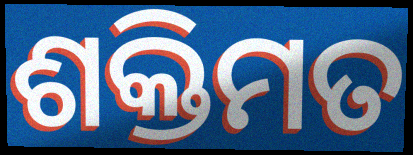
ଶକ୍ତିମତ